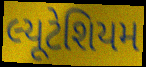
લ્યૂટેશિયમ